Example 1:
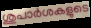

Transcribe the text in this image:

ശുപാർശകളുടെ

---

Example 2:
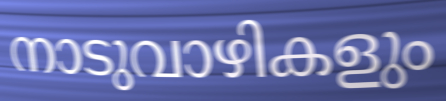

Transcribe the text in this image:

നാടുവാഴികളും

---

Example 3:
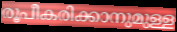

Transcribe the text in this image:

രൂപീകരിക്കാനുമുള്ള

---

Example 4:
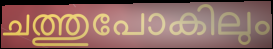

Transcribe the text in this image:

ചത്തുപോകിലും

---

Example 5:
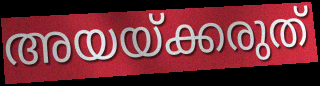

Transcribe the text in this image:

അയയ്ക്കരുത്